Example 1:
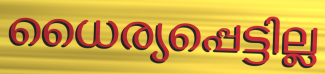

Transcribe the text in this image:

ധൈര്യപ്പെട്ടില്ല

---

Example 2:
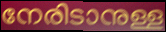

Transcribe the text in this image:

നേരിടാനുള്ള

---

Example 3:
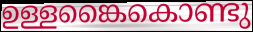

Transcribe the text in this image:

ഉള്ളങ്കൈകൊണ്ടു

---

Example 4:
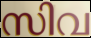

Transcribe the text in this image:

സിവ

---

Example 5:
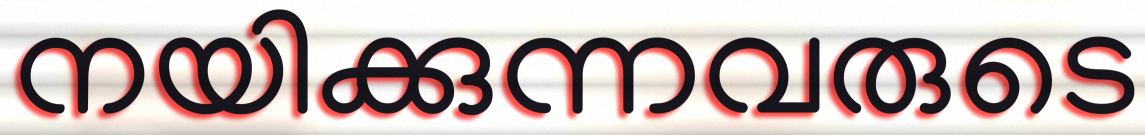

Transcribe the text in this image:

നയിക്കുന്നവരുടെ